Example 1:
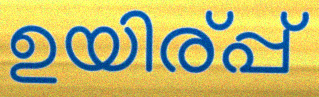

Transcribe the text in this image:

ഉയിര്പ്പ്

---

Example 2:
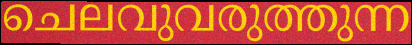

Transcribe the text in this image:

ചെലവുവരുത്തുന്ന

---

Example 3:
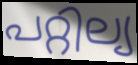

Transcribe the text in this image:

പറ്റില്യ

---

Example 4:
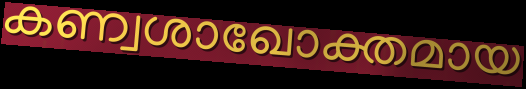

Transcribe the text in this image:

കണ്വശാഖോക്തമായ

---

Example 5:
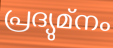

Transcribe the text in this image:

പ്രദ്യുമ്നം